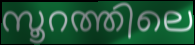
സൂറത്തിലെ